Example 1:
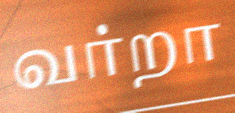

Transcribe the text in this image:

வர்றா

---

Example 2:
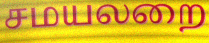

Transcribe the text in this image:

சமயலறை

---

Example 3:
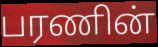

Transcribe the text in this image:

பரணின்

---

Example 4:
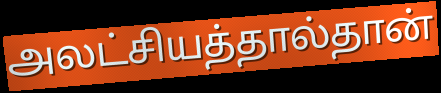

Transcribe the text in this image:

அலட்சியத்தால்தான்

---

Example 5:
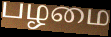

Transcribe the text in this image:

பழமை